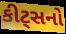
કીટ્સનો